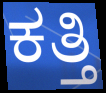
ಕತ್ತಿ